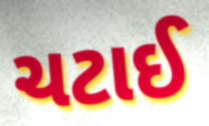
ચટાઈ